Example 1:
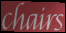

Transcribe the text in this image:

chairs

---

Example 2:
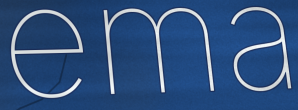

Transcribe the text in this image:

ema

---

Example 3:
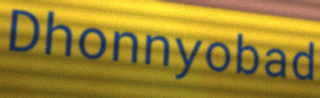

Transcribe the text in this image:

Dhonnyobad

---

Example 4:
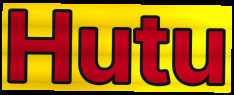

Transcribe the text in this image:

Hutu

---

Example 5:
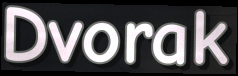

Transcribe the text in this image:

Dvorak